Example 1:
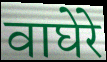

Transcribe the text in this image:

वाघेरे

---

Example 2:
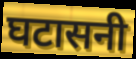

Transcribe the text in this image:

घटासनी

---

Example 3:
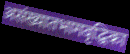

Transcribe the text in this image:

असंख्यातभागवृद्धिका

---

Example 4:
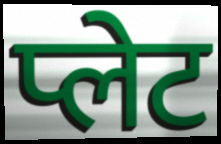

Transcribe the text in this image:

प्‍लेट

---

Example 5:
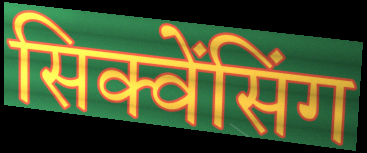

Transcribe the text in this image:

सिक्‍वेंसिंग